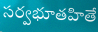
సర్వభూతహితే